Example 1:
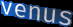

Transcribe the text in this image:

venus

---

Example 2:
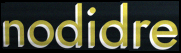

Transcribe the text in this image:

nodidre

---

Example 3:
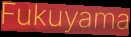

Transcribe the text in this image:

Fukuyama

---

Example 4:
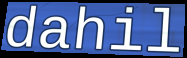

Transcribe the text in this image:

dahil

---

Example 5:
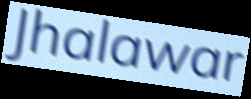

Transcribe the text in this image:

Jhalawar